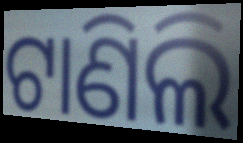
ଟାଣିଲି